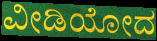
ವೀಡಿಯೋದ